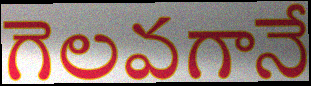
గెలవగానే